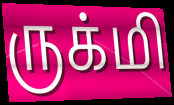
ருக்மி